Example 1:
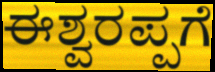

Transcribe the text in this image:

ಈಶ್ವರಪ್ಪಗೆ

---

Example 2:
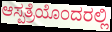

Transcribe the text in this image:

ಆಸ್ಪತ್ರೆಯೊಂದರಲ್ಲಿ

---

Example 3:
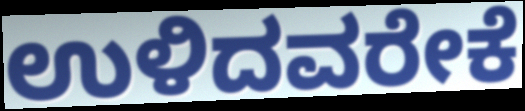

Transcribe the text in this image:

ಉಳಿದವರೇಕೆ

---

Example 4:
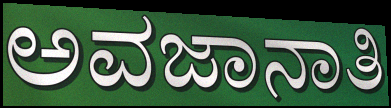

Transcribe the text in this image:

ಅವಜಾನಾತಿ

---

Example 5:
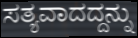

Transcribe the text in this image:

ಸತ್ಯವಾದದ್ದನ್ನು